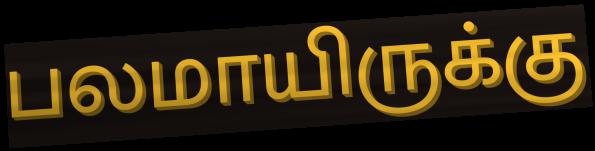
பலமாயிருக்கு